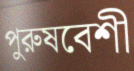
পুরুষবেশী